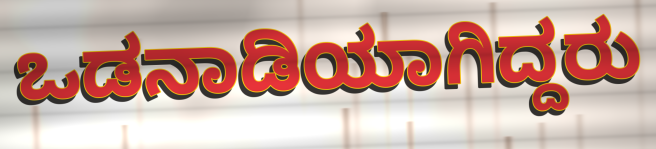
ಒಡನಾಡಿಯಾಗಿದ್ದರು